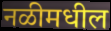
नळीमधील